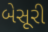
બેસૂરી